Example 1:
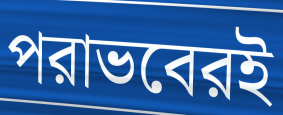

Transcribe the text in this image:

পরাভবেরই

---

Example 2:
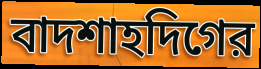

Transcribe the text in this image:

বাদশাহদিগের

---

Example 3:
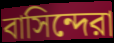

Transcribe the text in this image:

বাসিন্দেরা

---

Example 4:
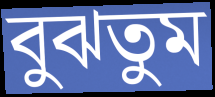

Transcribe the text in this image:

বুঝতুম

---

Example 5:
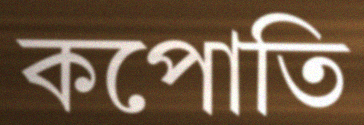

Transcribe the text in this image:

কপোতি